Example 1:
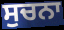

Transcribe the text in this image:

ਸੁਚਨਾ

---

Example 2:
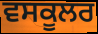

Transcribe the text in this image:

ਵਸਕੂਲਰ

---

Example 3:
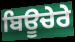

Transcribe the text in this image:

ਬਿਊਚੇਰੇ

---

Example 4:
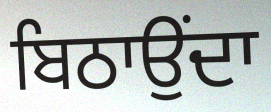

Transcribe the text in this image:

ਬਿਠਾਉਂਦਾ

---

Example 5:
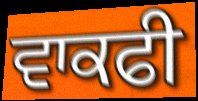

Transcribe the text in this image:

ਵਾਕਫੀ